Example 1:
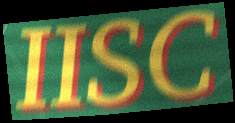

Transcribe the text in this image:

IISC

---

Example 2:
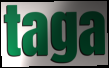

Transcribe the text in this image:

taga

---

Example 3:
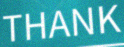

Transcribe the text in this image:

THANK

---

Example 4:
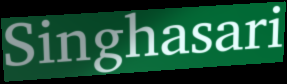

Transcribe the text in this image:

Singhasari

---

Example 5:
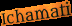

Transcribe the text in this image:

Ichamati